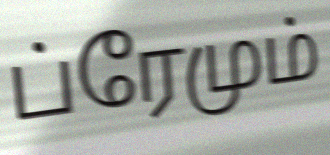
ப்ரேமும்